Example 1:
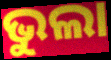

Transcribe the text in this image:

ଭୁଲା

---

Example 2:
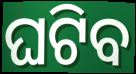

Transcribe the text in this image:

ଘଟିବ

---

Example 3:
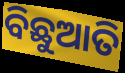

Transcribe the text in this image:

ବିଛୁଆତି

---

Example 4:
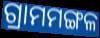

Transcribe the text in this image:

ଗ୍ରାମମଙ୍ଗଳ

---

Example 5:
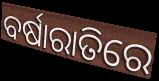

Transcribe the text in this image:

ବର୍ଷାରାତିରେ